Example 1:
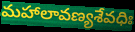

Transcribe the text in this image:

మహాలావణ్యశేవధిః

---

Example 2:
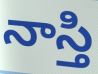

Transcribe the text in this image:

నాస్తి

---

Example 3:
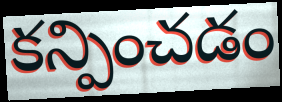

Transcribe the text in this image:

కన్పించడం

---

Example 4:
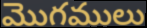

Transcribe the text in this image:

మొగములు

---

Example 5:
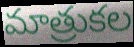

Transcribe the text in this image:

మాత్రుకల